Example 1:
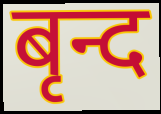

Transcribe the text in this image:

बृन्द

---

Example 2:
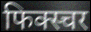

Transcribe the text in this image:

फिक्स्चर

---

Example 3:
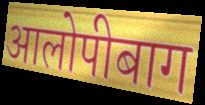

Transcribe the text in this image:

आलोपीबाग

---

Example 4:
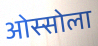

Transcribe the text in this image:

ओस्सोला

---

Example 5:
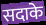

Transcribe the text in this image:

सदाके